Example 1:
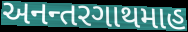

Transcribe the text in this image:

અનન્તરગાથમાહ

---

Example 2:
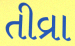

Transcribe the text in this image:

તીવ્રા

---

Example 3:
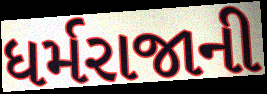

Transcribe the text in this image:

ધર્મરાજાની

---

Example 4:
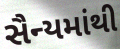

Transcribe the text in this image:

સૈન્યમાંથી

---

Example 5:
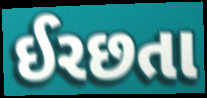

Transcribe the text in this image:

ઈરછતા